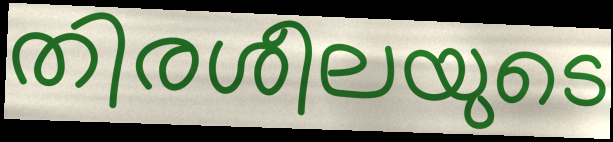
തിരശീലയുടെ